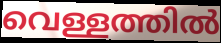
വെള്ളത്തിൽ